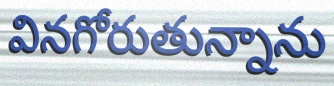
వినగోరుతున్నాను